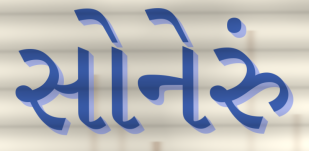
સોનેરું